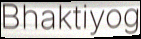
Bhaktiyog